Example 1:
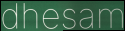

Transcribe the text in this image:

dhesam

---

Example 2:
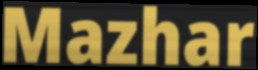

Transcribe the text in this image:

Mazhar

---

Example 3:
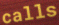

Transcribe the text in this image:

calls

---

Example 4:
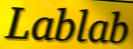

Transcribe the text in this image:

Lablab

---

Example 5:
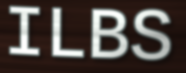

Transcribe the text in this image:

ILBS